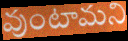
వుంటామని